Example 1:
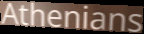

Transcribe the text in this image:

Athenians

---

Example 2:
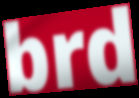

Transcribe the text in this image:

brd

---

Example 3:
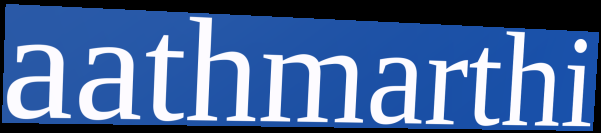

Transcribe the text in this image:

aathmarthi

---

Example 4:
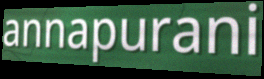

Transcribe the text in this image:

annapurani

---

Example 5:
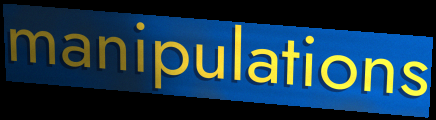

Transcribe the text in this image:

manipulations